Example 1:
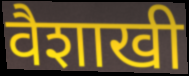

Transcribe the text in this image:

वैशाखी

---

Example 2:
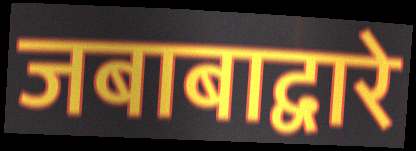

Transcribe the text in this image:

जबाबाद्वारे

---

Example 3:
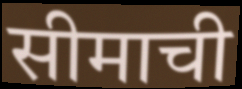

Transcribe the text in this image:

सीमाची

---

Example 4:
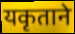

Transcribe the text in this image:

यकृताने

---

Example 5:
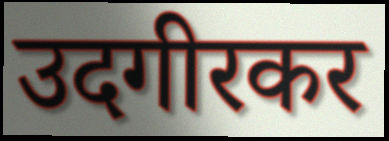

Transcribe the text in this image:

उदगीरकर